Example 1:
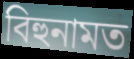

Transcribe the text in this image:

বিহুনামত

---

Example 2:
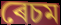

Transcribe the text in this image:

ৰেচম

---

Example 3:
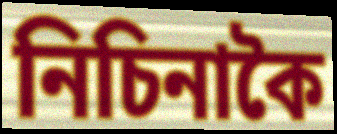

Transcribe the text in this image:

নিচিনাকৈ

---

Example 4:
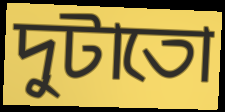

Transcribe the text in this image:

দুটাতো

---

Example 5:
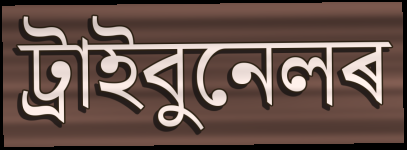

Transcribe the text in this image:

ট্ৰাইবুনেলৰ